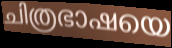
ചിത്രഭാഷയെ